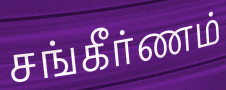
சங்கீர்ணம்